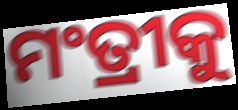
ମଂତ୍ରୀକୁ